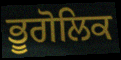
ਭੂਗੋਲਿਕ